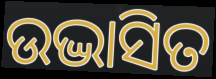
ଉଦ୍ଭାସିତ